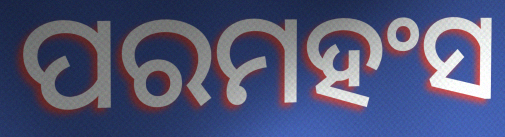
ପରମହଂସ